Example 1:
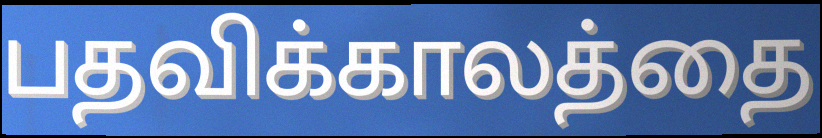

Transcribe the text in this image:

பதவிக்காலத்தை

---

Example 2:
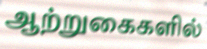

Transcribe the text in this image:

ஆற்றுகைகளில்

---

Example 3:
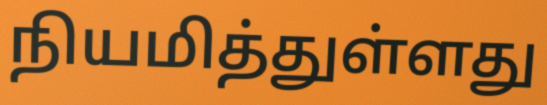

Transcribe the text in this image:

நியமித்துள்ளது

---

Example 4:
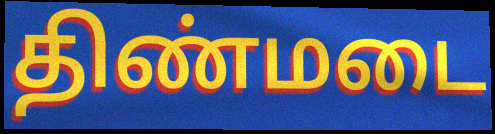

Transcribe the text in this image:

திண்மடை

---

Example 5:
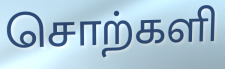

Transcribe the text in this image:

சொற்களி